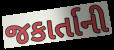
જકાર્તાની